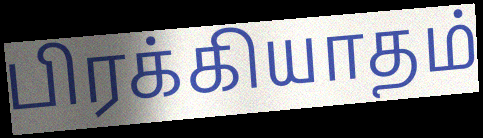
பிரக்கியாதம்